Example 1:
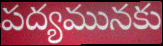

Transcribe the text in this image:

పద్యమునకు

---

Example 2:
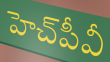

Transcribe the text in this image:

హెచ్‌పీవీ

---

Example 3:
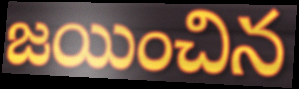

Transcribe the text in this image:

జయించిన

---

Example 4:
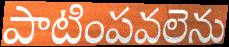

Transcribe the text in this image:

పాటింపవలెను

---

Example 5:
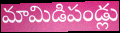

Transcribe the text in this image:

మామిడిపండ్లు